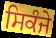
ਸਿਕੰਜੇ